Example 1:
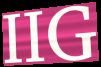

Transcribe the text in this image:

IIG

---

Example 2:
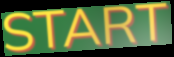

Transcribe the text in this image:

START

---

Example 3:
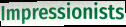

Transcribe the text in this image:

Impressionists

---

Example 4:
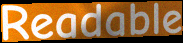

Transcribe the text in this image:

Readable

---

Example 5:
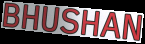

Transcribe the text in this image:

BHUSHAN